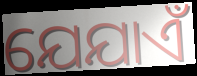
ଯେଯାଏଁ